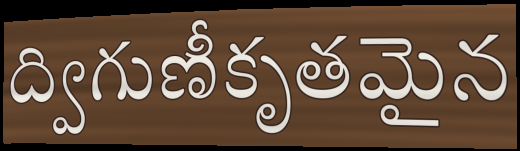
ద్విగుణీకృతమైన